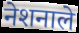
नेशनाले